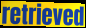
retrieved